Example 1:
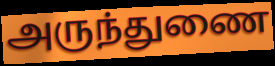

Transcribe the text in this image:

அருந்துணை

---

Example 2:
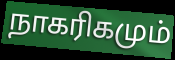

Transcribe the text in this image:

நாகரிகமும்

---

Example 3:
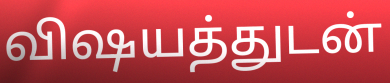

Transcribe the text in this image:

விஷயத்துடன்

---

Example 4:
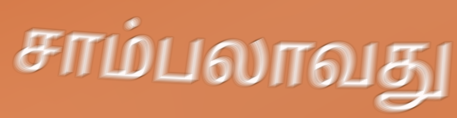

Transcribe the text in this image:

சாம்பலாவது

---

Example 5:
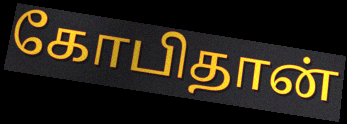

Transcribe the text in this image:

கோபிதான்